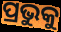
ପ୍ରଭୁକୁ